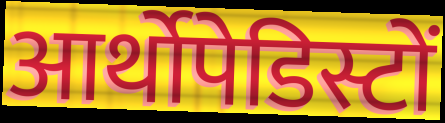
आर्थोपेडिस्टों